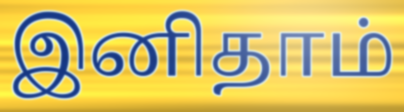
இனிதாம்